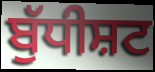
ਬੁੱਧੀਸ਼ਟ